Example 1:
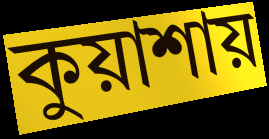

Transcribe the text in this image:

কুয়াশায়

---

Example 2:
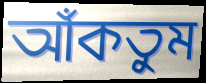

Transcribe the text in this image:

আঁকতুম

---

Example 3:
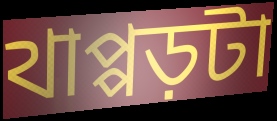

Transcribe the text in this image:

থাপ্পড়টা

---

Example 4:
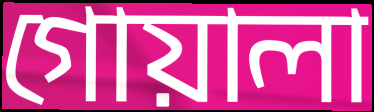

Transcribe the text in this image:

গোয়ালা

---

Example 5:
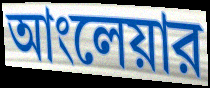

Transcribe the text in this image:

আংলেয়ার